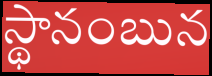
స్థానంబున